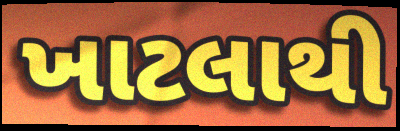
ખાટલાથી